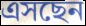
এসছেন